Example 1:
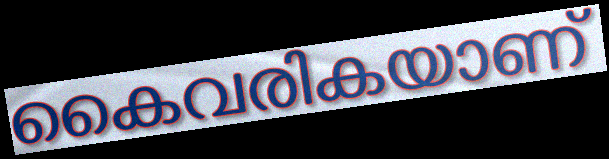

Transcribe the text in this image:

കൈവരികയാണ്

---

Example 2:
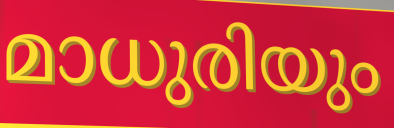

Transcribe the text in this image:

മാധുരിയും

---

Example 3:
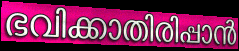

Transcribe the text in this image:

ഭവിക്കാതിരിപ്പാൻ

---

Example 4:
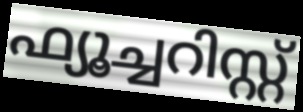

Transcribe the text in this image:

ഫ്യൂച്ചറിസ്റ്റ്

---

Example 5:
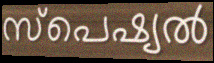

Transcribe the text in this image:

സ്പെഷ്യൽ